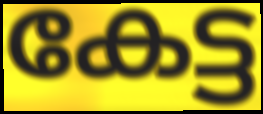
കേട്ട